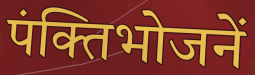
पंक्तिभोजनें